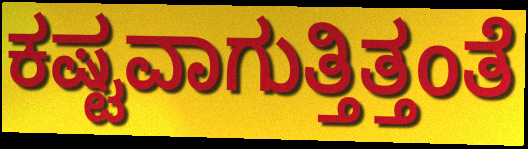
ಕಷ್ಟವಾಗುತ್ತಿತ್ತಂತೆ